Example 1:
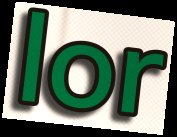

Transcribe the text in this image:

lor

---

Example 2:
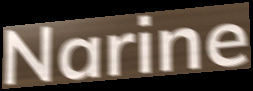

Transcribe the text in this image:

Narine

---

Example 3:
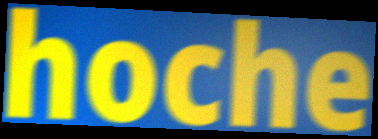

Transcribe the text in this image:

hoche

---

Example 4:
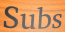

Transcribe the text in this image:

Subs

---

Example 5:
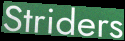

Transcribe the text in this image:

Striders